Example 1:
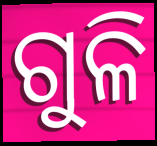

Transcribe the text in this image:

ଗୁଳି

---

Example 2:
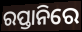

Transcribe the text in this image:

ରପ୍ତାନିରେ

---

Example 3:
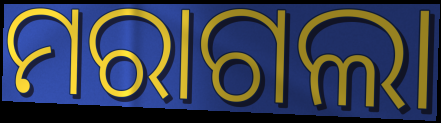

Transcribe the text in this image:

ମରାଗଲା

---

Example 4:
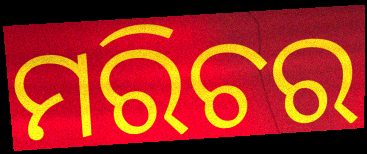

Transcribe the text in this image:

ମରିଚର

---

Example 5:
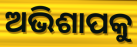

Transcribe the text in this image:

ଅଭିଶାପକୁ